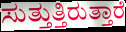
ಸುತ್ತುತ್ತಿರುತ್ತಾರೆ